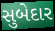
સુબેદાર